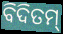
ବିଦିତମ୍